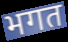
भगत